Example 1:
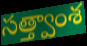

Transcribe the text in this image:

సత్త్వాంశ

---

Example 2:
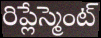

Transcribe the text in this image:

రిప్లేస్మెంట్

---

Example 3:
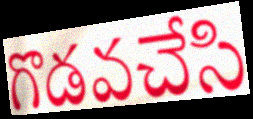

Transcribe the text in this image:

గొడవచేసి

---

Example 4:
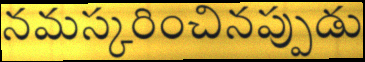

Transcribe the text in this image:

నమస్కరించినప్పుడు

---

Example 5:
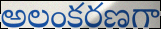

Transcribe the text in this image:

అలంకరణగా